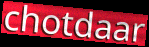
chotdaar